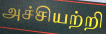
அச்சியற்றி